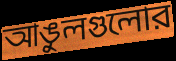
আঙুলগুলোর